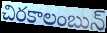
చిరకాలంబున్